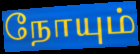
நோயும்